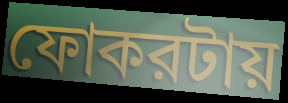
ফোকরটায়